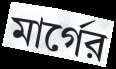
মার্গের